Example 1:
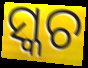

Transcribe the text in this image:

ସ୍କଚ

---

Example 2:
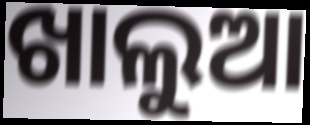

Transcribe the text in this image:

ଖାଲୁଆ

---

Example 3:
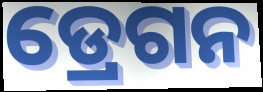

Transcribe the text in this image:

ଡ୍ରେଗନ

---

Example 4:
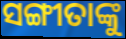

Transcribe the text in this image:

ସଙ୍ଗୀତାଙ୍କୁ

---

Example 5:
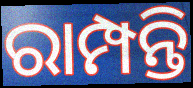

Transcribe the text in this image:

ରାମ୍ପନ୍ତି